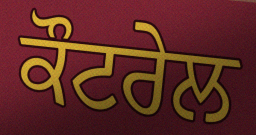
ਕੌਟਰੇਲ